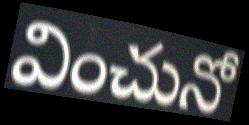
వించునో